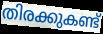
തിരക്കുകണ്ട്